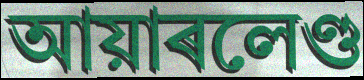
আয়াৰলেণ্ড